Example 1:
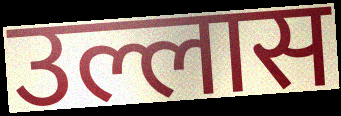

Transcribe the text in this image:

उल्‍लास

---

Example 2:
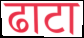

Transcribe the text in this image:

ढाटा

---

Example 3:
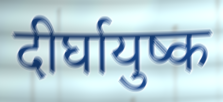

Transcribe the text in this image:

दीर्घायुष्क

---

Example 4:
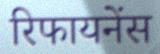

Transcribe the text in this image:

रिफायनेंस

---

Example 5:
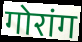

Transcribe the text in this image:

गोरांग